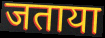
जताया